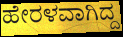
ಹೇರಳವಾಗಿದ್ದ